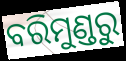
ବରିମୁଣ୍ଡରୁ